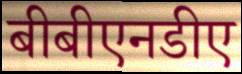
बीबीएनडीए